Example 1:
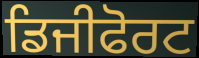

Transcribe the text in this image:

ਡਿਜੀਫੋਰਟ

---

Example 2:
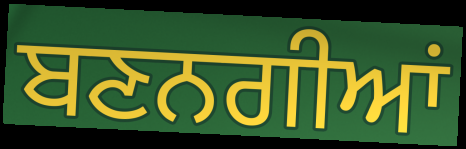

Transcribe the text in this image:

ਬਣਨਗੀਆਂ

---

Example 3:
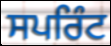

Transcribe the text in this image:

ਸਪਰਿੰਟ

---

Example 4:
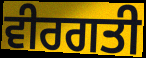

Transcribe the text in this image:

ਵੀਰਗਤੀ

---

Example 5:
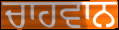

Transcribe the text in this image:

ਚਾਹਵਾਨ